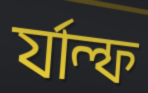
র্যাল্ফ